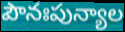
పౌనఃపున్యాల